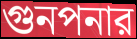
গুনপনার